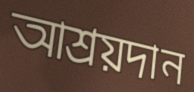
আশ্রয়দান